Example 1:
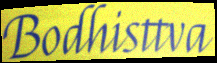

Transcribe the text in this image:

Bodhisttva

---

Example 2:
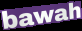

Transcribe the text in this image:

bawah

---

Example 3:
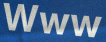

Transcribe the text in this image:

Www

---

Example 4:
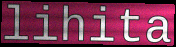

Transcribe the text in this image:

lihita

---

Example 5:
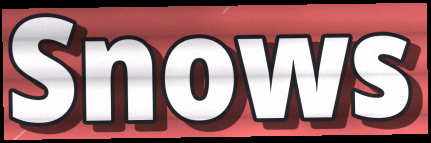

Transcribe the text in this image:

Snows